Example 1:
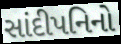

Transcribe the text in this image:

સાંદીપનિનો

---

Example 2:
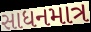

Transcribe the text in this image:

સાધનમાત્ર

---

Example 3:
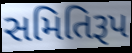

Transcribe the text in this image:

સમિતિરૂપ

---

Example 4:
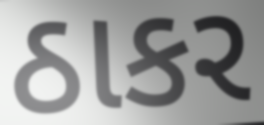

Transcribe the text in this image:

ઠાકર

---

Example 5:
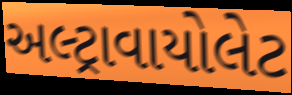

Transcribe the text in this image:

અલ્ટ્રાવાયોલેટ